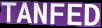
TANFED